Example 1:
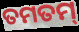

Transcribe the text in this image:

ତମତମ୍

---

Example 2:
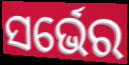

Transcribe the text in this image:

ସର୍ଭେର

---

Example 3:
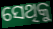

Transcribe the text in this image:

ସେଥିକୁ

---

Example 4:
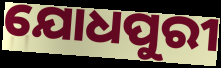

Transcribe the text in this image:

ଯୋଧପୁରୀ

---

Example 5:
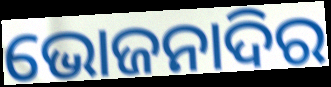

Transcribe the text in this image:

ଭୋଜନାଦିର